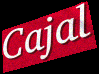
Cajal